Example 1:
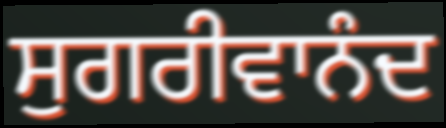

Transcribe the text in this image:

ਸੁਗਰੀਵਾਨੰਦ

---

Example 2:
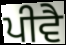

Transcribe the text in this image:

ਪੀਵੈ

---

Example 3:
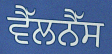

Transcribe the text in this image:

ਵੈੱਲਨੈੱਸ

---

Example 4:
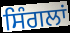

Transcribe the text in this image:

ਸਿੰਗਲਾਂ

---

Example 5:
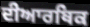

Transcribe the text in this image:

ਦੀਆਰਥਿਕ